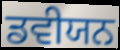
ਡਵੀਯਨ